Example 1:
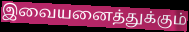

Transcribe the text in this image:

இவையனைத்துக்கும்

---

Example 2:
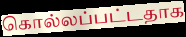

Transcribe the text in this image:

கொல்லப்பட்டதாக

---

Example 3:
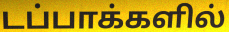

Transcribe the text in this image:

டப்பாக்களில்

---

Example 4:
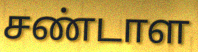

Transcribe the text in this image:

சண்டாள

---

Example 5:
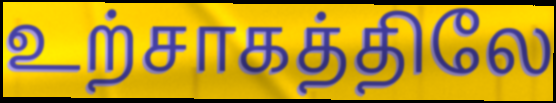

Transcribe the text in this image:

உற்சாகத்திலே